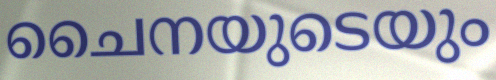
ചൈനയുടെയും